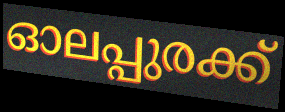
ഓലപ്പുരക്ക്